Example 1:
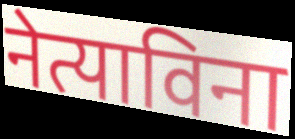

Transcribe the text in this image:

नेत्याविना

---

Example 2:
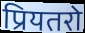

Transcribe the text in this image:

प्रियतरो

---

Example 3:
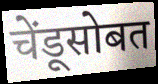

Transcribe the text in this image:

चेंडूसोबत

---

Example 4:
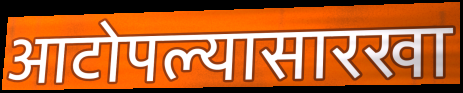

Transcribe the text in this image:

आटोपल्यासारखा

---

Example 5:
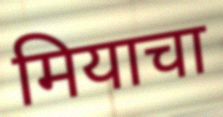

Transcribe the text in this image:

मियाचा